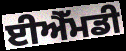
ਈਐੱਮਡੀ